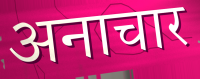
अनाचार